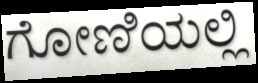
ಗೋಣಿಯಲ್ಲಿ